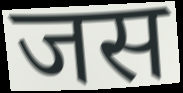
जस